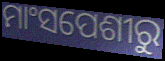
ମାଂସପେଶୀରୁ